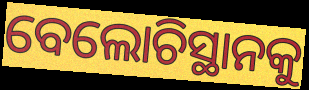
ବେଲୋଚିସ୍ଥାନକୁ